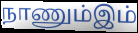
நாணும்இம்